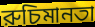
রুচিমানতা